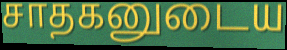
சாதகனுடைய